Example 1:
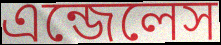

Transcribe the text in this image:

এন্জেলেস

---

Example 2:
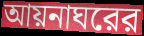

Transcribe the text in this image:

আয়নাঘরের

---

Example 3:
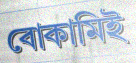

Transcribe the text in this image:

বোকামিই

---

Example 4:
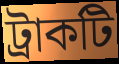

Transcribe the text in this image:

ট্রাকটি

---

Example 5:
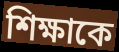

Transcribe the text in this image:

শিক্ষাকে